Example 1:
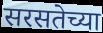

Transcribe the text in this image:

सरसतेच्या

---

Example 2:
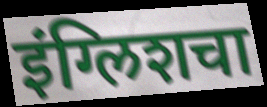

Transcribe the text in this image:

इंग्लिशचा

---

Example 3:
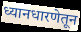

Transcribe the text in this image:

ध्यानधारणेतून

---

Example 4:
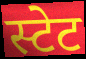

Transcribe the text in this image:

स्टेट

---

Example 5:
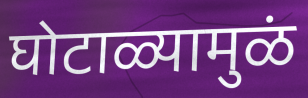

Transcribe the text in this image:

घोटाळ्यामुळं